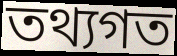
তথ্যগত